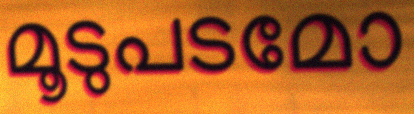
മൂടുപടമോ